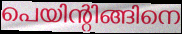
പെയിന്റിങ്ങിനെ